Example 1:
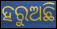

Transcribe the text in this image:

ହରୁଅଛି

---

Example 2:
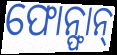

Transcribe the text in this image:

ଫୋନ୍ଫାନ୍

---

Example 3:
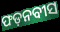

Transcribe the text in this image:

ଫଡ଼ନବୀସ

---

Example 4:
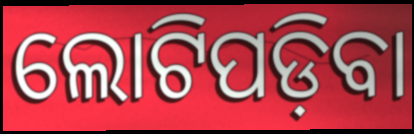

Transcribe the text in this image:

ଲୋଟିପଡ଼ିବା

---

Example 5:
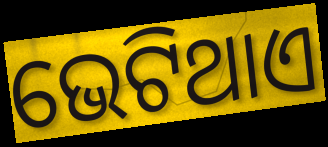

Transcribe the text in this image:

ଭେଟିଥାଏ